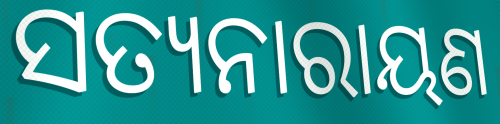
ସତ୍ୟନାରାୟଣ